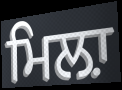
ਮਿਲ਼ਾ